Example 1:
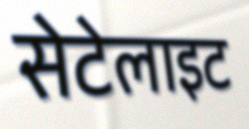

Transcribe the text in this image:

सेटेलाइट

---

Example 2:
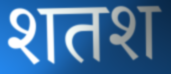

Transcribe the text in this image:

शतश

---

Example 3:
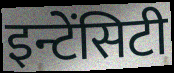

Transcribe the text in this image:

इन्टेंसिटी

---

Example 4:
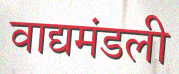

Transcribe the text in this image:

वाद्यमंडली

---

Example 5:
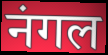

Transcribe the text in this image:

नंगल